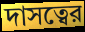
দাসত্বের